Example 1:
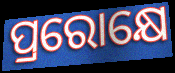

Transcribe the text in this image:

ପ୍ରରୋକ୍ଷେ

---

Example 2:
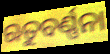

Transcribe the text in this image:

ଋତୁବର୍ଣ୍ଣନା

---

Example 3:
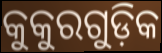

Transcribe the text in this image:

କୁକୁରଗୁଡ଼ିକ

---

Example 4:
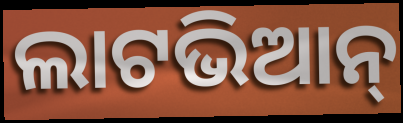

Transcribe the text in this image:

ଲାଟଭିଆନ୍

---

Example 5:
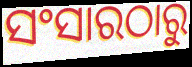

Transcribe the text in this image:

ସଂସାରଠାରୁ